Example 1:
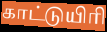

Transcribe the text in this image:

காட்டுயிரி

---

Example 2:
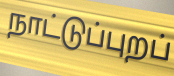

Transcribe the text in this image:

நாட்டுப்புறப்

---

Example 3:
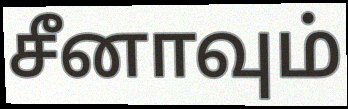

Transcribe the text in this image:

சீனாவும்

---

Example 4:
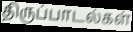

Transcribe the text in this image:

திருப்பாடல்கள்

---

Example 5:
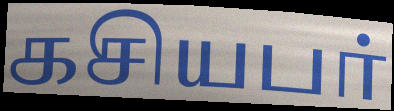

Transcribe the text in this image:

கசியபர்